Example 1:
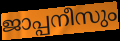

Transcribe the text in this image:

ജാപ്പനീസും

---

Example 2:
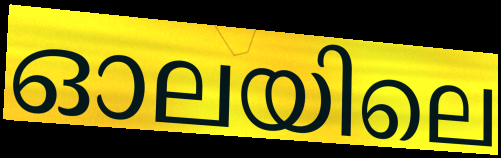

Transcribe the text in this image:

ഓലയിലെ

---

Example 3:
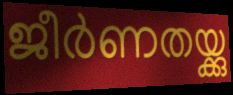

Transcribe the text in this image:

ജീർണതയ്ക്കു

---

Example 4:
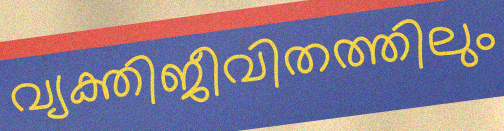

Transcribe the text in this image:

വ്യക്തിജീവിതത്തിലും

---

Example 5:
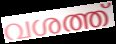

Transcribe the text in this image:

വശത്ത്